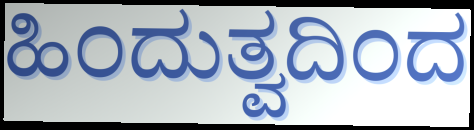
ಹಿಂದುತ್ವದಿಂದ